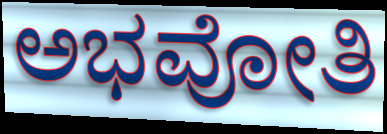
ಅಭವೋತಿ